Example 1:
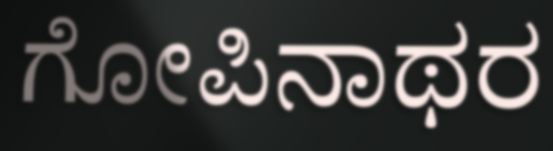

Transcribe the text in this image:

ಗೋಪಿನಾಥರ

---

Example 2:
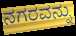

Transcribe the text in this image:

ನಗರವನ್ನು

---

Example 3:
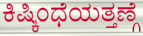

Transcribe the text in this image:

ಕಿಷ್ಕಿಂಧೆಯತ್ತಣ್ಗೆ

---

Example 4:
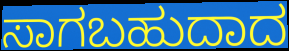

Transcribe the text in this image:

ಸಾಗಬಹುದಾದ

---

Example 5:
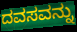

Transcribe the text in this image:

ದವಸವನ್ನು